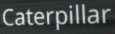
Caterpillar